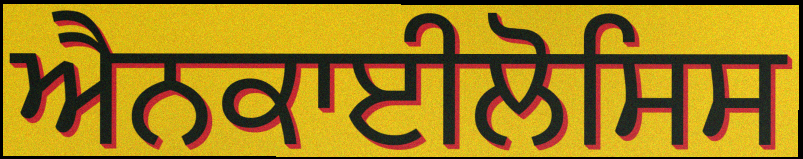
ਐਨਕਾਈਲੋਸਿਸ